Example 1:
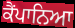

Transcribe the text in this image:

ਕੈਂਪਾਨਿਆ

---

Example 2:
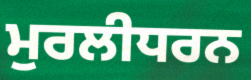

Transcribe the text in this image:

ਮੁਰਲੀਧਰਨ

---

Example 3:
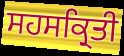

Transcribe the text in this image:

ਸਹਸਕ੍ਰਿਤੀ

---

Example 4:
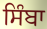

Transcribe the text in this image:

ਸਿੰਬਾ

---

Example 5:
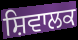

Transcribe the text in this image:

ਸ਼ਿਵਾਲਕ